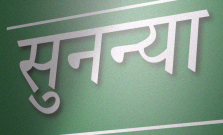
सुनन्या